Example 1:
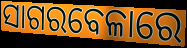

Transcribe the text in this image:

ସାଗରବେଳାରେ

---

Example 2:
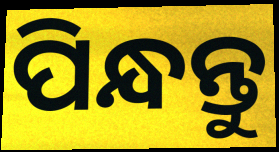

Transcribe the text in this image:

ପିନ୍ଧନ୍ତୁ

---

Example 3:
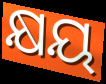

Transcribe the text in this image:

କ୍ଷୟ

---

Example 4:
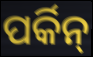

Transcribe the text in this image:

ପର୍କିନ୍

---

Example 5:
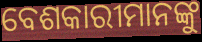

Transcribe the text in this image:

ବେଶକାରୀମାନଙ୍କୁ